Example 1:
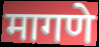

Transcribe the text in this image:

मागणे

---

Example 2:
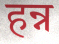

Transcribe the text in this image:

हन्न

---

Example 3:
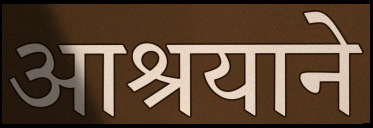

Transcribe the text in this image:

आश्रयाने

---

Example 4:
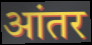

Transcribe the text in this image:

आंतर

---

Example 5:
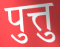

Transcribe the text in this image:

पुत्तु